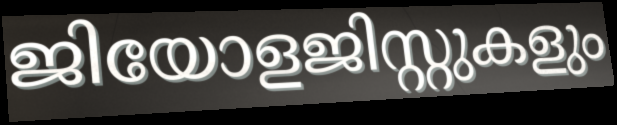
ജിയോളജിസ്റ്റുകളും